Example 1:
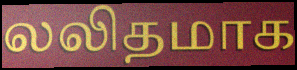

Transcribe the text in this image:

லலிதமாக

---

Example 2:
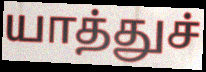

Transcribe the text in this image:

யாத்துச்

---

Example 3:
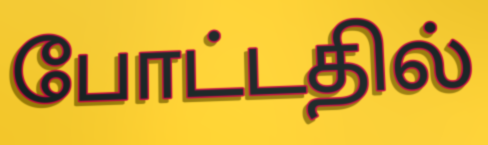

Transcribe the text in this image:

போட்டதில்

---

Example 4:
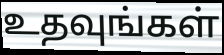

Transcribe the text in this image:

உதவுங்கள்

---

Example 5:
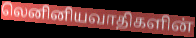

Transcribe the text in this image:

லெனினியவாதிகளின்